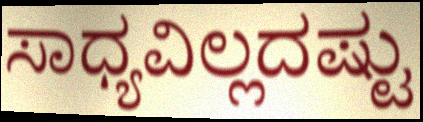
ಸಾಧ್ಯವಿಲ್ಲದಷ್ಟು